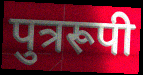
पुत्ररूपी